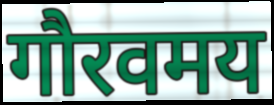
गौरवमय